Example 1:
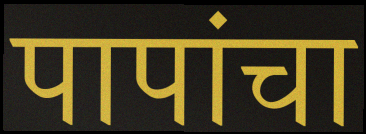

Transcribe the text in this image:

पापांचा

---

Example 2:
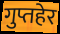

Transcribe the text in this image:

गुप्तहेर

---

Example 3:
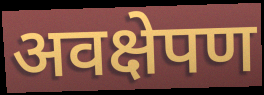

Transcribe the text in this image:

अवक्षेपण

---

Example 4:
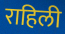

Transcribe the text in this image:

राहिली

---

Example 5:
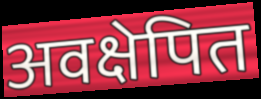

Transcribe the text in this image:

अवक्षेपित